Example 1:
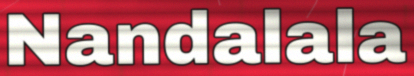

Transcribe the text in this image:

Nandalala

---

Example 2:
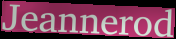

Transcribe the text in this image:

Jeannerod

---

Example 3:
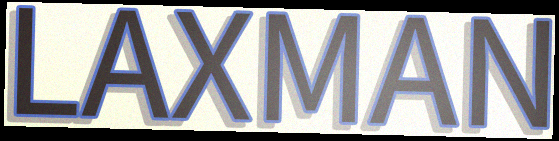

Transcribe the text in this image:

LAXMAN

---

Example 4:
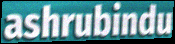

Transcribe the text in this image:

ashrubindu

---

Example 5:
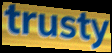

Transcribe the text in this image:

trusty